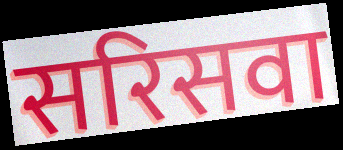
सरिसवा